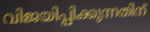
വിജയിപ്പിക്കുന്നതിന്